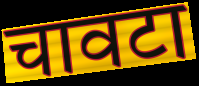
चावटा